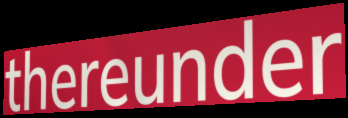
thereunder